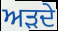
ਅੜਦੇ